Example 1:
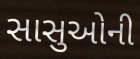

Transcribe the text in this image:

સાસુઓની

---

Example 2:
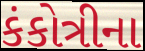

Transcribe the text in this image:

કંકોત્રીના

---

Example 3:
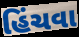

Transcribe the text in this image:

હિંચવા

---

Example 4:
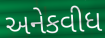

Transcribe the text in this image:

અનેકવીધ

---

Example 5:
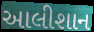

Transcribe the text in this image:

આલીશાન